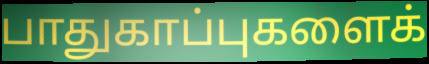
பாதுகாப்புகளைக்